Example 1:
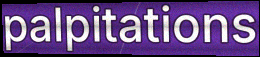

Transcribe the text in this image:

palpitations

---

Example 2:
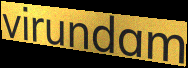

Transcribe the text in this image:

virundam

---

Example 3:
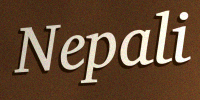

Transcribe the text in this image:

Nepali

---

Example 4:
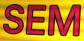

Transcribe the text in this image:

SEM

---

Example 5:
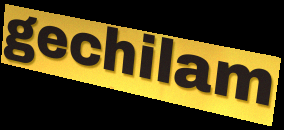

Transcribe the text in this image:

gechilam